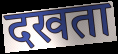
दखता